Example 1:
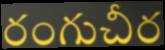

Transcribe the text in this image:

రంగుచీర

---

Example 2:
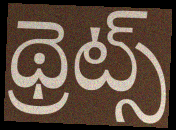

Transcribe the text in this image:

థ్రెట్స్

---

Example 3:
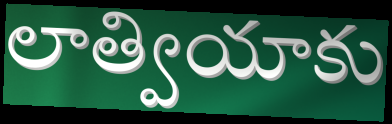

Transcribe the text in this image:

లాత్వియాకు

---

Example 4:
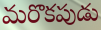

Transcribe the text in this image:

మరొకపుడు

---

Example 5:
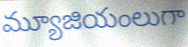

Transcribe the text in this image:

మ్యూజియంలుగా